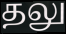
தலு